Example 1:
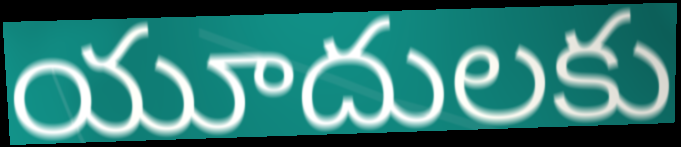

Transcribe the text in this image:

యూదులకు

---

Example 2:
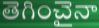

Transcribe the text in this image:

తెగించైనా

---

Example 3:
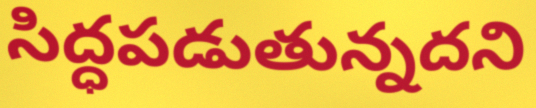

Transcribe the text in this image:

సిద్ధపడుతున్నదని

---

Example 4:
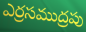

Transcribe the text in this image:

ఎర్రసముద్రపు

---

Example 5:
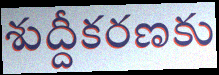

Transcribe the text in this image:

శుద్దీకరణకు